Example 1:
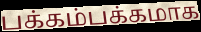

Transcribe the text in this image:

பக்கம்பக்கமாக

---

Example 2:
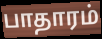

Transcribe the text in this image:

பாதாரம்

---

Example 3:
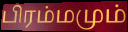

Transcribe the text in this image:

பிரம்மமும்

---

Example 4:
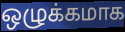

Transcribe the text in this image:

ஒழுக்கமாக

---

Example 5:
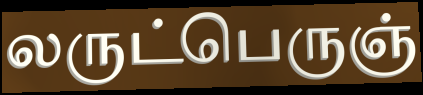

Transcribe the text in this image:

லருட்பெருஞ்